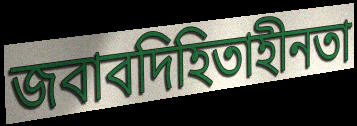
জবাবদিহিতাহীনতা